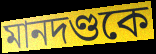
মানদণ্ডকে